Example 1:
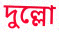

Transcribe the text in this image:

দুল্লো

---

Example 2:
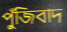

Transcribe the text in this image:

পুঁজিবাদ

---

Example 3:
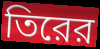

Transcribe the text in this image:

তিরের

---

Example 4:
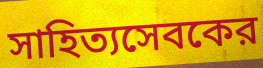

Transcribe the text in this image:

সাহিত্যসেবকের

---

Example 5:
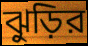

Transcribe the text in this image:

ঝুড়ির